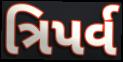
ત્રિપર્વ